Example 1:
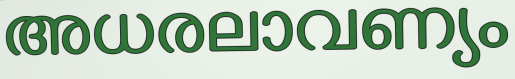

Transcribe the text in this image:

അധരലാവണ്യം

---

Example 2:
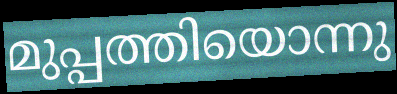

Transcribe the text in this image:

മുപ്പത്തിയൊന്നു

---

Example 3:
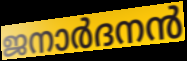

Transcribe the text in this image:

ജനാർദനൻ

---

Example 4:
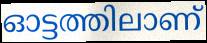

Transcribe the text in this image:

ഓട്ടത്തിലാണ്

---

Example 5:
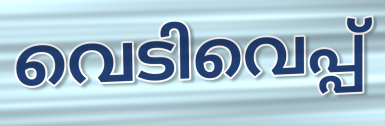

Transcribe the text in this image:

വെടിവെപ്പ്